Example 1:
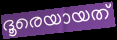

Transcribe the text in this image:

ദൂരെയായത്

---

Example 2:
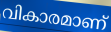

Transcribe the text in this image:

വികാരമാണ്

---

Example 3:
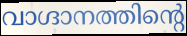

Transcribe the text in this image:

വാഗ്ദാനത്തിന്റെ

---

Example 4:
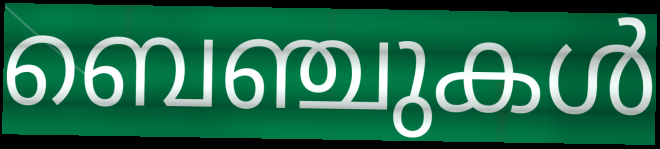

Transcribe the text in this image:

ബെഞ്ചുകൾ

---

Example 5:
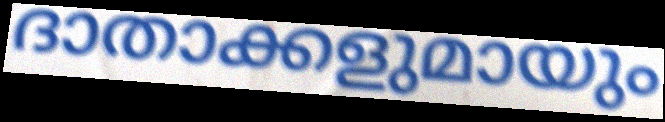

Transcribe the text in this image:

ദാതാക്കളുമായും